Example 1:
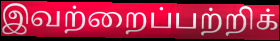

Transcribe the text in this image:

இவற்றைப்பற்றிக்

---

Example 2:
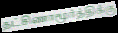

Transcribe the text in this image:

தட்சிணாமூர்த்திக்கு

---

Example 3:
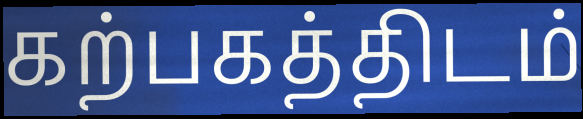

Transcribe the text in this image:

கற்பகத்திடம்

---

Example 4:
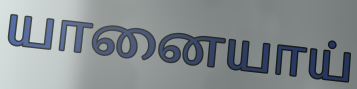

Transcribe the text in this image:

யானையாய்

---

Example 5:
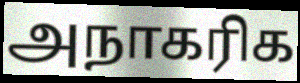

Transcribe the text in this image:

அநாகரிக